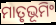
ମାତୃଭୂମିଂ